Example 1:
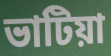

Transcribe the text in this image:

ভাটিয়া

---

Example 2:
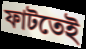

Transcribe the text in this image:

ফাটতেই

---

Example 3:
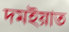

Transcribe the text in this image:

দমইয়াত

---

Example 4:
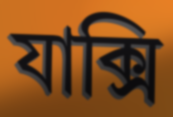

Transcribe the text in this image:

যাক্সি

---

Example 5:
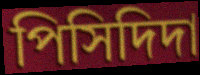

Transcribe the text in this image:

পিসিদিদা